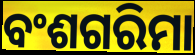
ବଂଶଗରିମା